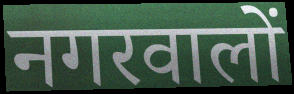
नगरवालों